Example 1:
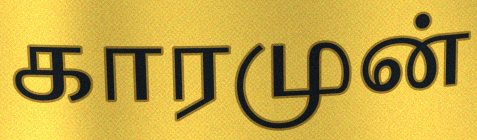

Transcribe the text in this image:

காரமுன்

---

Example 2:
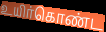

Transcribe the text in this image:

உயிர்கொண்ட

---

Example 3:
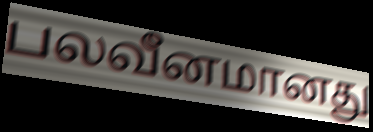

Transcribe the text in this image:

பலவீனமானது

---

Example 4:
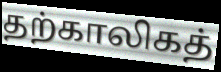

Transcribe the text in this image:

தற்காலிகத்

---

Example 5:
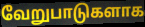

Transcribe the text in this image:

வேறுபாடுகளாக